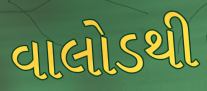
વાલોડથી